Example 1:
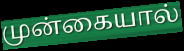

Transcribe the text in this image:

முன்கையால்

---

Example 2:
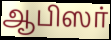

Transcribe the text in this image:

ஆபிஸர்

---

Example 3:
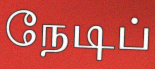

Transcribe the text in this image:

நேடிப்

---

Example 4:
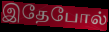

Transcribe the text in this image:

இதேபோல்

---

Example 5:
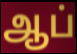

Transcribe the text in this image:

ஆப்